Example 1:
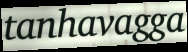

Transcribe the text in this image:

tanhavagga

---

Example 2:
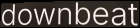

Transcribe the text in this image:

downbeat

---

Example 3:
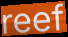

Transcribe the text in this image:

reef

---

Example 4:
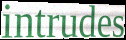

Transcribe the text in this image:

intrudes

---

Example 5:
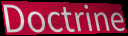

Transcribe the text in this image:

Doctrine